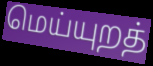
மெய்யுறத்